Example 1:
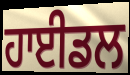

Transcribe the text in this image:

ਹਾਈਡਲ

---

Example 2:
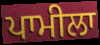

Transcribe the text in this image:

ਪਾਮੀਲਾ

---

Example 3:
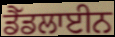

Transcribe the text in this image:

ਡੈੱਡਲਾਈਨ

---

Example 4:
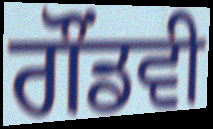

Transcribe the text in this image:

ਗੌਂਡਵੀ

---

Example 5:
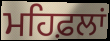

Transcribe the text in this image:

ਮਹਿਫ਼ਲਾਂ